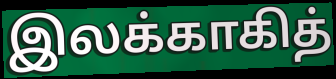
இலக்காகித்